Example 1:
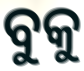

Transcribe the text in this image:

ବୁକୁ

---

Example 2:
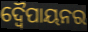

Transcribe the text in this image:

ଦ୍ୱୈପାୟନର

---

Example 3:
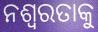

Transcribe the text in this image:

ନଶ୍ବରତାକୁ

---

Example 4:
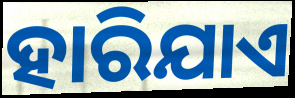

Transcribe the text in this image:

ହାରିଯାଏ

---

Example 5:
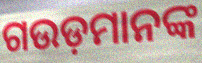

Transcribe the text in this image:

ଗଉଡ଼ମାନଙ୍କ